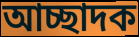
আচ্ছাদক